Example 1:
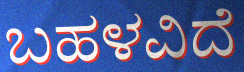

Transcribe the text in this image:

ಬಹಳವಿದೆ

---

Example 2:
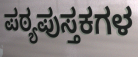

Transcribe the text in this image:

ಪಠ್ಯಪುಸ್ತಕಗಳ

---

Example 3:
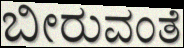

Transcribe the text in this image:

ಬೀರುವಂತೆ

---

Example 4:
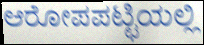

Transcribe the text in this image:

ಆರೋಪಪಟ್ಟಿಯಲ್ಲಿ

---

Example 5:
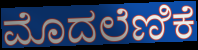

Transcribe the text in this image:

ಮೊದಲೆಣಿಕೆ